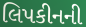
લિપકીનની